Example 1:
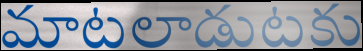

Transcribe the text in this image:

మాటలాడుటకు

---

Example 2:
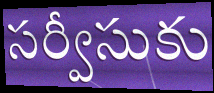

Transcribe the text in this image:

సర్వీసుకు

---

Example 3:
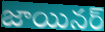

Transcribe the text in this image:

జాయినర్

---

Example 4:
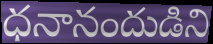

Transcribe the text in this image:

ధనానందుడిని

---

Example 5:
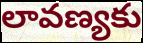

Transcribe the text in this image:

లావణ్యకు